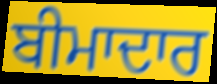
ਬੀਮਾਦਾਰ